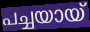
പച്ചയായ്